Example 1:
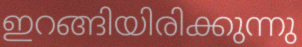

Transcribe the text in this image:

ഇറങ്ങിയിരിക്കുന്നു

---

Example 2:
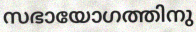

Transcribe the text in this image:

സഭായോഗത്തിനു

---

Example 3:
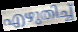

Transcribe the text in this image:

എഴുതിച്ച്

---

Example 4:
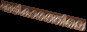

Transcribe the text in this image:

ഘടികാരത്തിലെ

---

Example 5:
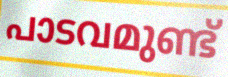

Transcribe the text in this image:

പാടവമുണ്ട്